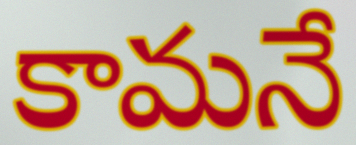
కామనే